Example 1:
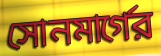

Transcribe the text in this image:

সোনমার্গের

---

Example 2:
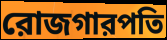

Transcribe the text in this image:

রোজগারপতি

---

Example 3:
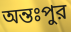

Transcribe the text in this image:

অন্তঃপুর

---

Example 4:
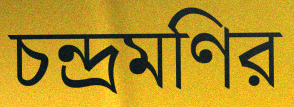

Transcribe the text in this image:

চন্দ্রমণির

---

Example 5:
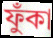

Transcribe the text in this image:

ফুঁকা